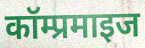
कॉम्प्रमाइज